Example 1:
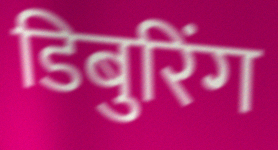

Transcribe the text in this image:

डिबुरिंग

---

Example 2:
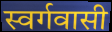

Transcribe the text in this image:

स्‍वर्गवासी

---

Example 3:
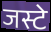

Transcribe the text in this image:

जस्टे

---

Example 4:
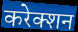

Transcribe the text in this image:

करेक्शन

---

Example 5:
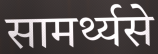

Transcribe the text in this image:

सामर्थ्यसे